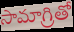
సామాగ్రితో